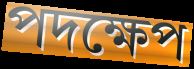
পদক্ষেপ